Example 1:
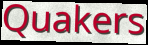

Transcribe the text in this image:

Quakers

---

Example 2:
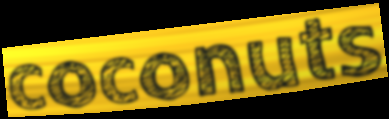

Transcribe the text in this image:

coconuts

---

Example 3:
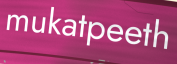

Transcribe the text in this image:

mukatpeeth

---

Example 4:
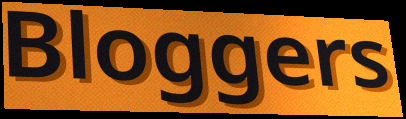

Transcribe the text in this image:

Bloggers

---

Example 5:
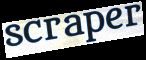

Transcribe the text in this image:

scraper